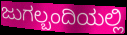
ಜುಗಲ್ಬಂದಿಯಲ್ಲಿ